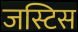
जस्टिस